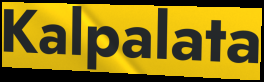
Kalpalata